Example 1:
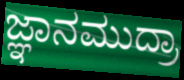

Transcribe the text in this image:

ಜ್ಞಾನಮುದ್ರಾ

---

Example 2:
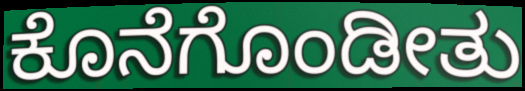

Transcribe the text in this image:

ಕೊನೆಗೊಂಡೀತು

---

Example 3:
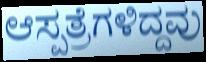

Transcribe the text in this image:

ಆಸ್ಪತ್ರೆಗಳಿದ್ದವು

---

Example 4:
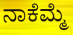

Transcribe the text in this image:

ನಾಕೆಮ್ಮೆ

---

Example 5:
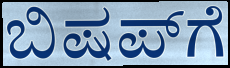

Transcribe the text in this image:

ಬಿಷಪ್‌ಗೆ